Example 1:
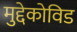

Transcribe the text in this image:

मुद्देकोविड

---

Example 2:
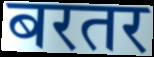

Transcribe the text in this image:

बरतर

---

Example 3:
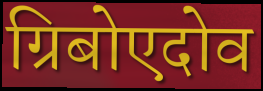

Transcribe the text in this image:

ग्रिबोएदोव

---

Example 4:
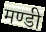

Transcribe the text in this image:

मण्डी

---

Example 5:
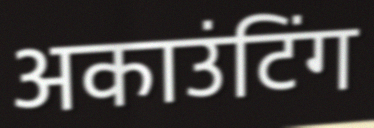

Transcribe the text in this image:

अकाउंटिंग